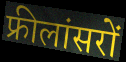
फ्रीलांसरों